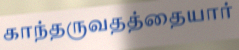
காந்தருவதத்தையார்